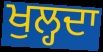
ਖੁਲ੍ਹਦਾ